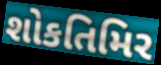
શોકતિમિર